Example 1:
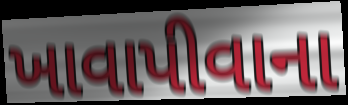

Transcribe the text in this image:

ખાવાપીવાના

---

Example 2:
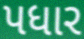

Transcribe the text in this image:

પધાર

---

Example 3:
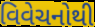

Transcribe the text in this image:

વિવેચનોથી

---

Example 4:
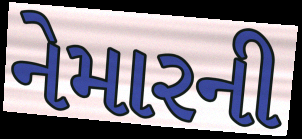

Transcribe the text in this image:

નેમારની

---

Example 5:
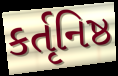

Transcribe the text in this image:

કર્તૃનિષ્ઠ